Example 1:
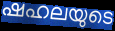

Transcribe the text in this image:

ഷഹലയുടെ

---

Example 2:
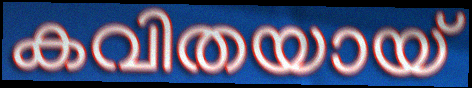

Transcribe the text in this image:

കവിതയായ്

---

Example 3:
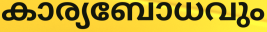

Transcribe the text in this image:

കാര്യബോധവും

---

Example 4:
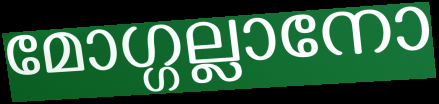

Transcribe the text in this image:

മോഗ്ഗല്ലാനോ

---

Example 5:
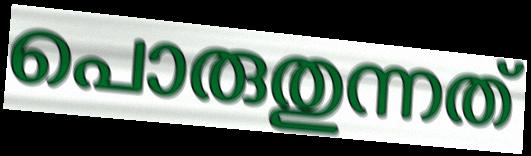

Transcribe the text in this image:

പൊരുതുന്നത്